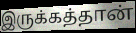
இருக்கத்தான்